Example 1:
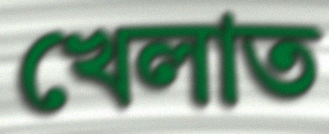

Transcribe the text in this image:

খেলাত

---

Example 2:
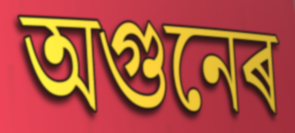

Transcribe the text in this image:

অগুনেৰ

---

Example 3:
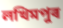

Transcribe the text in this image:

লখিমপুৰ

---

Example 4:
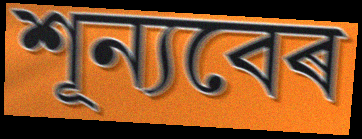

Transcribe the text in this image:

শূন্যবেৰ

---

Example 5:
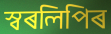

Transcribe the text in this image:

স্বৰলিপিৰ